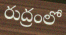
రుద్రంలో